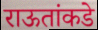
राऊतांकडे